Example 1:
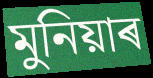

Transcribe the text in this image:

মুনিয়াৰ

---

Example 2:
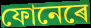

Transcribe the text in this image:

ফোনেৰে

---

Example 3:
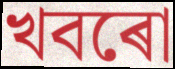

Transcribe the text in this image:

খবৰো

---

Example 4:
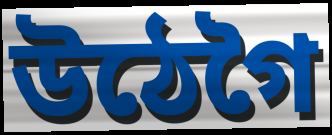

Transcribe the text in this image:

উঠেগৈ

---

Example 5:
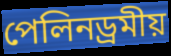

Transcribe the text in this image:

পেলিনড্ৰমীয়